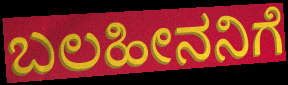
ಬಲಹೀನನಿಗೆ